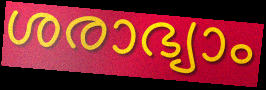
ശരാഭ്യാം